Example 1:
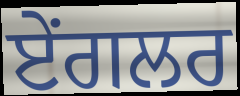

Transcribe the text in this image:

ਏਂਗਲਰ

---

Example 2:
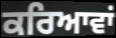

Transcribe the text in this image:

ਕਰਿਆਵਾਂ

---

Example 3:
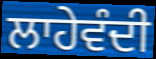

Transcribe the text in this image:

ਲਾਹੇਵੰਦੀ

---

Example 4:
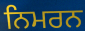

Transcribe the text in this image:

ਨਿਮਰਨ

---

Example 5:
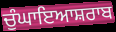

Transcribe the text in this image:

ਚੁੰਘਾਇਆਸ਼ਰਾਬ